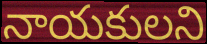
నాయకులని